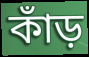
কাঁড়